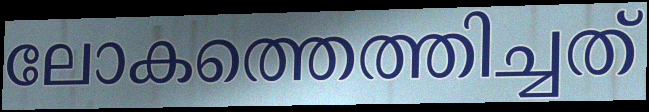
ലോകത്തെത്തിച്ചത്